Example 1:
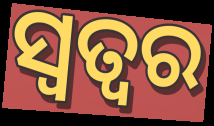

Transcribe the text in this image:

ସ୍ୱତ୍ୱର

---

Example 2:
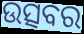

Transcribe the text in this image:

ଉତ୍ସବର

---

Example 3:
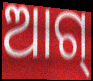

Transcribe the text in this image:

ଆଗ୍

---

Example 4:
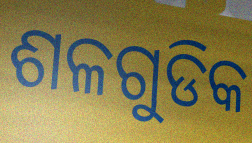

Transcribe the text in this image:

ଶଳଗୁଡିକ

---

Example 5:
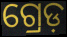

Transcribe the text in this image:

ଗ୍ରେଡ଼